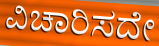
ವಿಚಾರಿಸದೇ